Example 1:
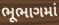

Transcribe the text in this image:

ભૂભાગમાં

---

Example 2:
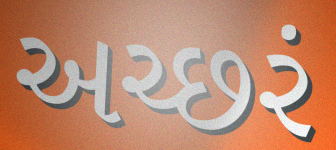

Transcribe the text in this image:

અચ્છરં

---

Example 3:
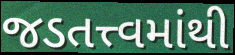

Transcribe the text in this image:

જડતત્ત્વમાંથી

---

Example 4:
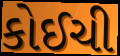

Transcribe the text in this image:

કોઈચી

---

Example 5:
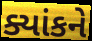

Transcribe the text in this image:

ક્યાંકને